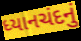
ધ્યાનચંદનું